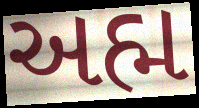
અહ્મ